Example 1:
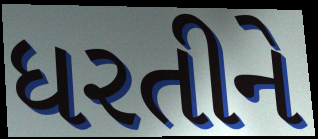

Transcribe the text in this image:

ધરતીને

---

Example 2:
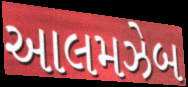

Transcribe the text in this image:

આલમઝેબ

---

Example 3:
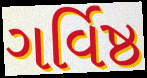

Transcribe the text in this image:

ગર્વિષ્ઠ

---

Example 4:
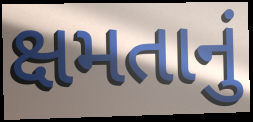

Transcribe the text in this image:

ક્ષમતાનું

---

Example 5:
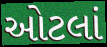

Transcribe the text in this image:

ઓટલાં